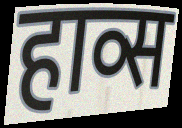
हाव्स